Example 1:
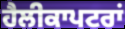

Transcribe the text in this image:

ਹੈਲੀਕਾਪਟਰਾਂ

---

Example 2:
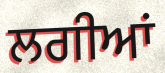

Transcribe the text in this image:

ਲਗੀਆਂ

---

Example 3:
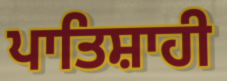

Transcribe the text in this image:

ਪਾਤਿਸ਼ਾਹੀ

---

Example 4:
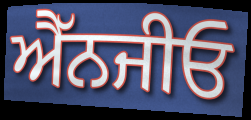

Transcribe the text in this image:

ਐੱਨਜੀਓ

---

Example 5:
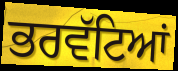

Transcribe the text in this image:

ਭਰਵੱਟਿਆਂ